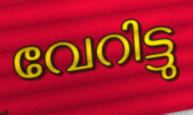
വേറിട്ടു